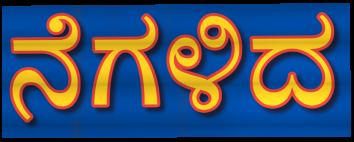
ನೆಗಳಿದ